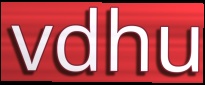
vdhu